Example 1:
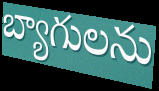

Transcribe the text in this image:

బ్యాగులను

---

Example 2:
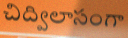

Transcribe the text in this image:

చిద్విలాసంగా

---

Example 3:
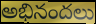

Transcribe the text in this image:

అభినందలు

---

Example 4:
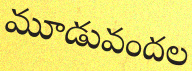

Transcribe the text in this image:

మూడువందల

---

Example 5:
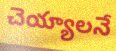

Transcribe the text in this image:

చెయ్యాలనే